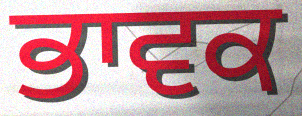
ਭਾਵਕ